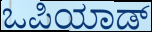
ಒಪಿಯಾಡ್